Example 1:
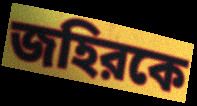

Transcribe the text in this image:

জহিরকে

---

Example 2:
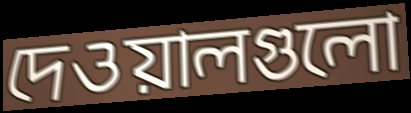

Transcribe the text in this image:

দেওয়ালগুলো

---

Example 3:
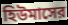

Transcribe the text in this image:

হিউমাসের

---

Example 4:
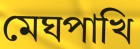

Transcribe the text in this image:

মেঘপাখি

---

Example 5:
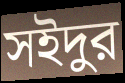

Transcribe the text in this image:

সইদুর